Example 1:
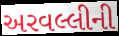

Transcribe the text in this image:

અરવલ્લીની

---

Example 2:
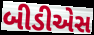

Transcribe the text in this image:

બીડીએસ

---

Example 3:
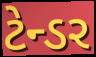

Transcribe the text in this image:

ટેન્ડર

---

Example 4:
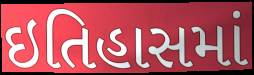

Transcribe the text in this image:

ઇતિહાસમાં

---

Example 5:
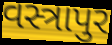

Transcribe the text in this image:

વસ્ત્રાપુર